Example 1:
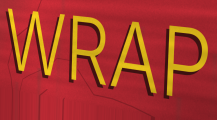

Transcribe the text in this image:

WRAP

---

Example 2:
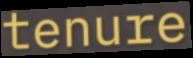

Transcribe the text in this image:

tenure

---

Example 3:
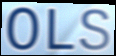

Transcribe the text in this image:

OLS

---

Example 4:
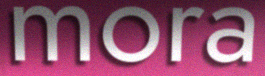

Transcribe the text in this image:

mora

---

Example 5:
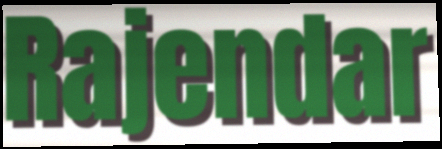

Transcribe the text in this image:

Rajendar